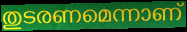
തുടരണമെന്നാണ്